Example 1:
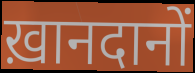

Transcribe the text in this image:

ख़ानदानों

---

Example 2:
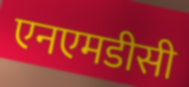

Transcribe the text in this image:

एनएमडीसी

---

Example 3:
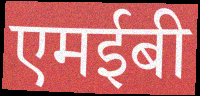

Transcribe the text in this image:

एमईबी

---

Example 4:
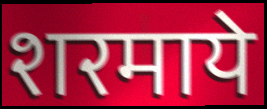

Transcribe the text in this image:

शरमाये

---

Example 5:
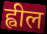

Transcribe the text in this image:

ह्वील